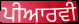
ਪੀਆਰਵੀ